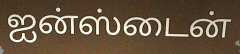
ஐன்ஸ்டைன்